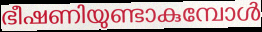
ഭീഷണിയുണ്ടാകുമ്പോൾ